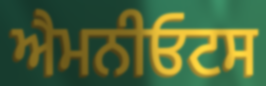
ਐਮਨੀਓਟਸ